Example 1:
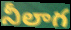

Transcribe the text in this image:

నీలాగ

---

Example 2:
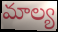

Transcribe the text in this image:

మాల్య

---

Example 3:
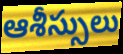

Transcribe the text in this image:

ఆశీస్సులు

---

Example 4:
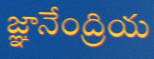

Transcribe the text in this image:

జ్ఞానేంద్రియ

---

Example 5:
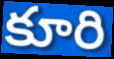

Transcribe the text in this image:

కూరి